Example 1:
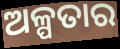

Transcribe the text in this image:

ଅଳ୍ପତାର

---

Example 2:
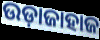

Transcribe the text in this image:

ଉଡ଼ାଜାହାଜ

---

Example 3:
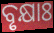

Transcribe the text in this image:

ବୃକ୍ଷାଃ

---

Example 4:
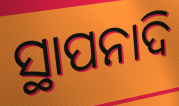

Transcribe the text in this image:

ସ୍ଥାପନାଦି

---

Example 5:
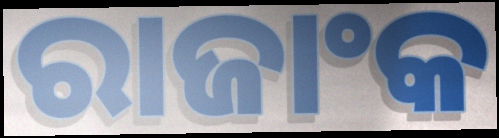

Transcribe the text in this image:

ରାଜାଂକ